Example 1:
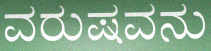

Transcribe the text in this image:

ವರುಷವನು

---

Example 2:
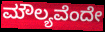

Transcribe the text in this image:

ಮೌಲ್ಯವೆಂದೇ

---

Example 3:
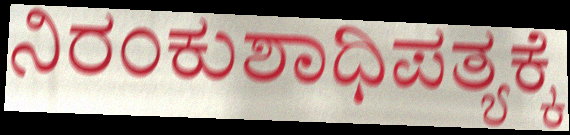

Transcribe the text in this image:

ನಿರಂಕುಶಾಧಿಪತ್ಯಕ್ಕೆ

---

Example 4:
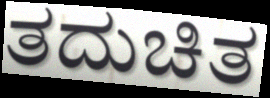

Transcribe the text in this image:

ತದುಚಿತ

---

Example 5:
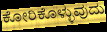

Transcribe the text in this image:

ಕೋರಿಕೊಳ್ಳುವುದು